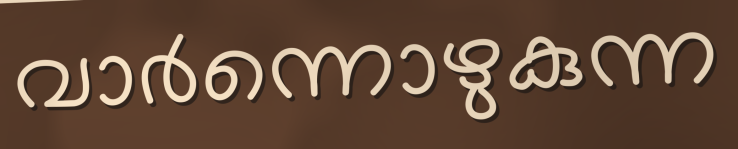
വാർന്നൊഴുകുന്ന